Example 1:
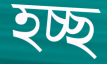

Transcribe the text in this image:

হচ্ছ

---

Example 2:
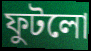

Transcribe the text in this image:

ফুটলো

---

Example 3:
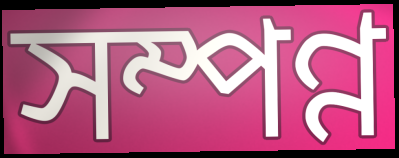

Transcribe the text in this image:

সম্পণ্ন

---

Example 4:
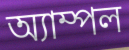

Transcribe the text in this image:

অ্যাম্পল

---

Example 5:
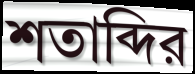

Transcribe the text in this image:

শতাব্দির